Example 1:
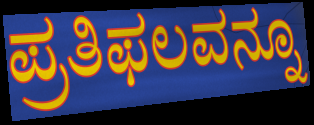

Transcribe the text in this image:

ಪ್ರತಿಫಲವನ್ನೂ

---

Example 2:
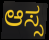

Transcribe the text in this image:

ಆಸ್ಸ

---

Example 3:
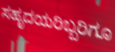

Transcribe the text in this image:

ಸಹೃದಯರಿಬ್ಬರಿಗೂ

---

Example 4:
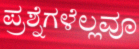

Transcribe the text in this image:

ಪ್ರಶ್ನೆಗಳೆಲ್ಲವೂ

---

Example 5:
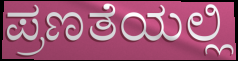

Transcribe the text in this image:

ಪ್ರಣತೆಯಲ್ಲಿ